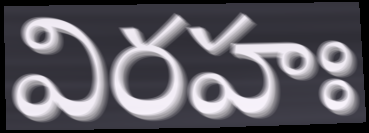
విరహః